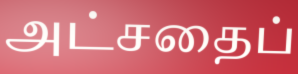
அட்சதைப்